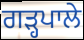
ਗੜ੍ਹਪਾਲੇ